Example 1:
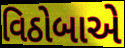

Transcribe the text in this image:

વિઠોબાએ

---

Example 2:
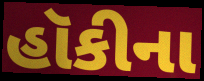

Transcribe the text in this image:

હૉકીના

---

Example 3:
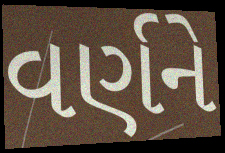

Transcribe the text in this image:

વર્ણને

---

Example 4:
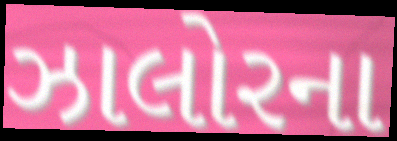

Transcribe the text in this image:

ઝાલોરના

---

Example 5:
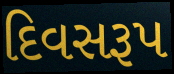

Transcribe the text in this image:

દિવસરૂપ